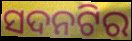
ସଦନଟିର